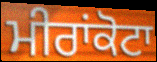
ਮੀਰਾਂਕੋਟਾ